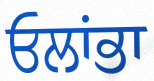
ਓਲਾਂਭਾ